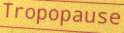
Tropopause